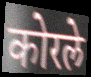
कोरले